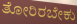
ತೋರಿರಬೇಕು